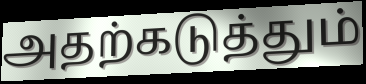
அதற்கடுத்தும்